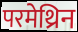
परमेथ्रिन